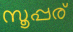
സൂപ്പര്